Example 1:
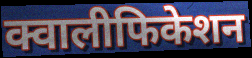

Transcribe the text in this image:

क्वालीफिकेशन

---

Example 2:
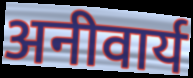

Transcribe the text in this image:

अनीवार्य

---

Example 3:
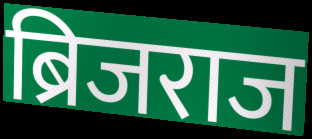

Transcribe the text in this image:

ब्रिजराज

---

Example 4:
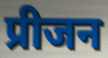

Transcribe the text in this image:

प्रीजन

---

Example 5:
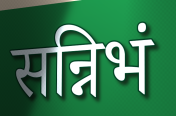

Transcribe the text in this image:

सन्निभं